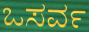
ಒಸರ್ವ